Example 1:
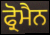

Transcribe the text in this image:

ਫ੍ਰੋਮੈਨ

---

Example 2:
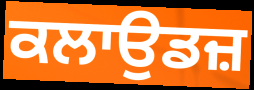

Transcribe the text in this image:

ਕਲਾਉਡਜ਼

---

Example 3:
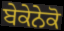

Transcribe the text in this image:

ਬੇਕੇਨੇਕੋ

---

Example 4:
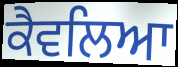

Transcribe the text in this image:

ਕੈਵਲਿਆ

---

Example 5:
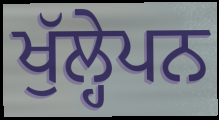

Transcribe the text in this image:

ਖੁੱਲ੍ਹੇਪਨ